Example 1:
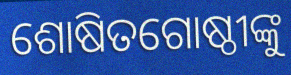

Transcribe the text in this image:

ଶୋଷିତଗୋଷ୍ଠୀଙ୍କୁ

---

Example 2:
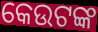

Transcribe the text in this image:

କେଉଟଙ୍କ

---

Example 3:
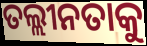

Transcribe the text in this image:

ତଲ୍ଲୀନତାକୁ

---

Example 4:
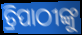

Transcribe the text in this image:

ତ୍ରିପାଠୀଙ୍କୁ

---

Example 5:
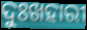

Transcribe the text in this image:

ଦୁଃଖହାରୀ